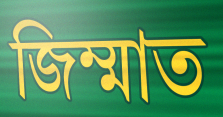
জিম্মাত